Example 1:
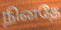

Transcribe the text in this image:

நினதே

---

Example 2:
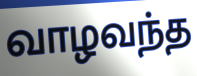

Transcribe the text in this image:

வாழவந்த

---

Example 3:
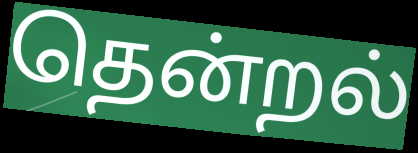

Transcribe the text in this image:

தென்றல்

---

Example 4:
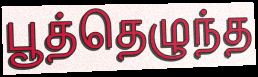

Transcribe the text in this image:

பூத்தெழுந்த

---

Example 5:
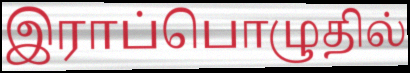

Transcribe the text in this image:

இராப்பொழுதில்